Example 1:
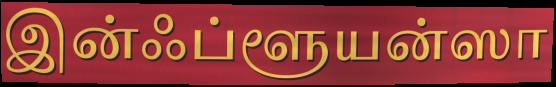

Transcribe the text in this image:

இன்ஃப்ளூயன்ஸா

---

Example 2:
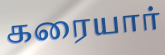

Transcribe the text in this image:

கரையார்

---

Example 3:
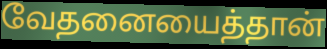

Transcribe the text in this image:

வேதனையைத்தான்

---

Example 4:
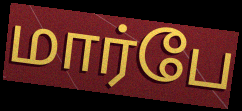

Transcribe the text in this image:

மார்பே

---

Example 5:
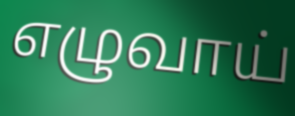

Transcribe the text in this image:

எழுவாய்